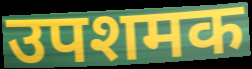
उपशमक